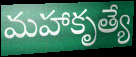
మహాకృత్యే